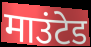
माउंटेड